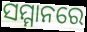
ସମ୍ମାନରେ